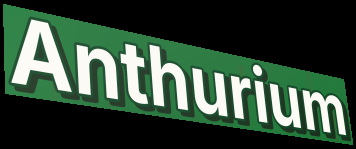
Anthurium